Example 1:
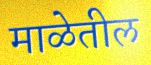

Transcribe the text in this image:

माळेतील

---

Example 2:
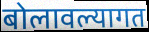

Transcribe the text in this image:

बोलावल्यागत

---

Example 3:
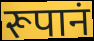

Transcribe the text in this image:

रूपानं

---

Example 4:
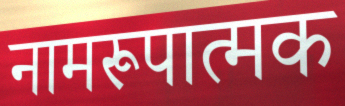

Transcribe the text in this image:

नामरूपात्मक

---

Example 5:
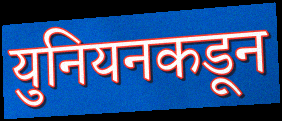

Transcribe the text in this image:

युनियनकडून